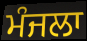
ਮੰਜਲਾ